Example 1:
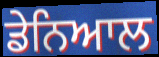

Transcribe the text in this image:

ਡੇਨਿਆਲ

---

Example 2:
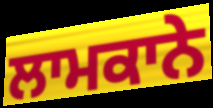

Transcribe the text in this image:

ਲਾਮਕਾਨੇ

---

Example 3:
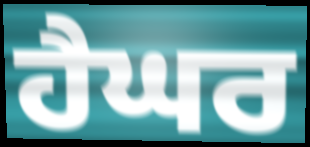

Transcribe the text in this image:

ਹੈਘਰ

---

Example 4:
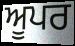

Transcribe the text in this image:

ਅੂਪਰ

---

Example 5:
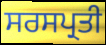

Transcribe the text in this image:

ਸਰਸਪ੍ਰਤੀ